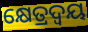
କ୍ଷେତ୍ରଦ୍ଵୟ